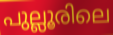
പുല്ലൂരിലെ